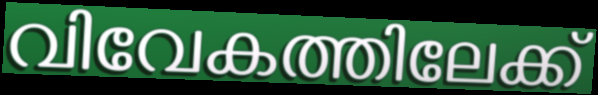
വിവേകത്തിലേക്ക്